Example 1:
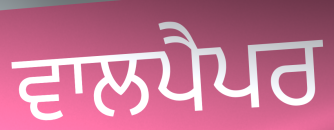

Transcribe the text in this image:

ਵਾਲਪੈਪਰ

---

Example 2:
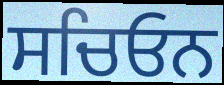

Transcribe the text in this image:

ਸਚਿਓਨ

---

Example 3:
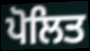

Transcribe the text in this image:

ਪੋਲਿਤ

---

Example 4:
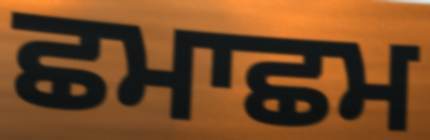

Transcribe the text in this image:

ਛਮਾਛਮ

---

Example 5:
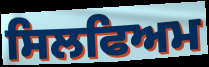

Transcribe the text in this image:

ਸਿਲਫਿਅਮ